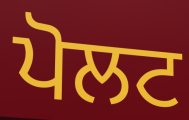
ਪੋਲਟ